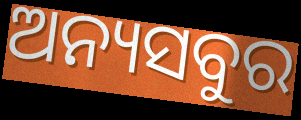
ଅନ୍ୟସବୁର